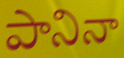
పానినా